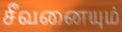
சீவனையும்